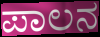
ಪಾಲನ